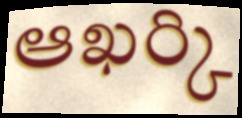
ఆఖర్కి